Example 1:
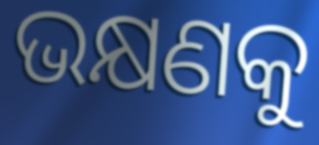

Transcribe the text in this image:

ଭକ୍ଷଣକୁ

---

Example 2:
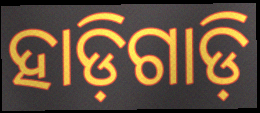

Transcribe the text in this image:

ହାଡ଼ିଗାଡ଼ି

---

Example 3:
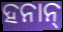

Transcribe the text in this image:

ହନାନ୍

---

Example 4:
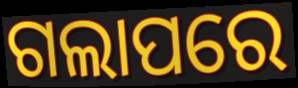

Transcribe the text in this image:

ଗଲାପରେ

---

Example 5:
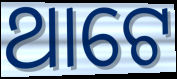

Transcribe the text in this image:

ଥାଟେ